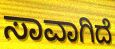
ಸಾವಾಗಿದೆ